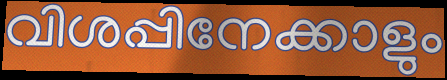
വിശപ്പിനേക്കാളും